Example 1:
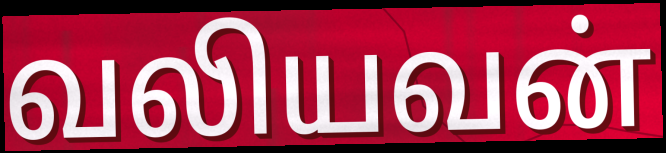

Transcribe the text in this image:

வலியவன்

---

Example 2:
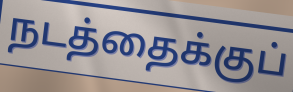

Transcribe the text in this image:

நடத்தைக்குப்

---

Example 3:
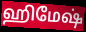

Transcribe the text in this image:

ஹிமேஷ்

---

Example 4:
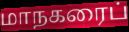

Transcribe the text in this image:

மாநகரைப்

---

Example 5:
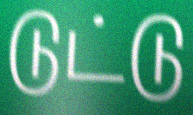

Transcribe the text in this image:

டுட்டு